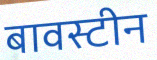
बावस्टीन